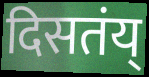
दिसतंय्